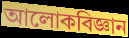
আলোকবিজ্ঞান